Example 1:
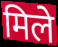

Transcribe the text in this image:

मिले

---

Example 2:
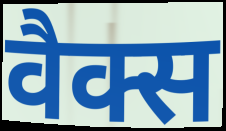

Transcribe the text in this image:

वैक्स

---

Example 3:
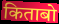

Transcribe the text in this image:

किताबो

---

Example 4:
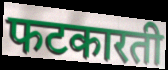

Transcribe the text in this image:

फटकारती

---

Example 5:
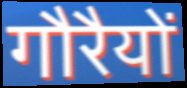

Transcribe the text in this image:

गौरैयों